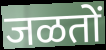
जळतों